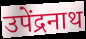
उपेंद्रनाथ